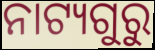
ନାଟ୍ୟଗୁରୁ